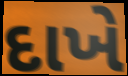
દાખે